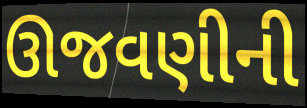
ઊજવણીની